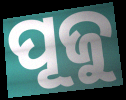
ପୂଜୁ